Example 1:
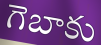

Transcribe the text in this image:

గెబాకు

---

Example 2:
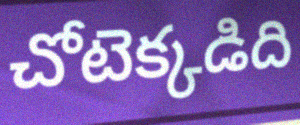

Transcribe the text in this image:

చోటెక్కడిది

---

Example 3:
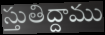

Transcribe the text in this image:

స్తుతిద్దాము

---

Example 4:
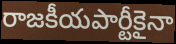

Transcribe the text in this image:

రాజకీయపార్టీకైనా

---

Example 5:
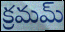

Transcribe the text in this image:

క్రమమ్